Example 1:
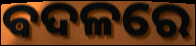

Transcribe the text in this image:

ଵଦଳରେ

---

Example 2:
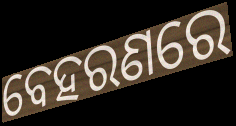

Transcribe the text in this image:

ବେହରଣରେ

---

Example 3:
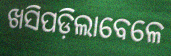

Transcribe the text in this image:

ଖସିପଡ଼ିଲାବେଳେ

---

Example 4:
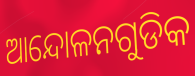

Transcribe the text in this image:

ଆନ୍ଦୋଳନଗୁଡିକ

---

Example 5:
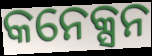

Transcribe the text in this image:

କନେକ୍ସନ